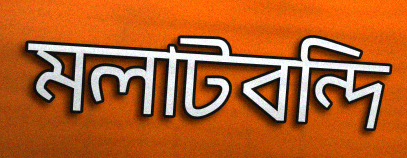
মলাটবন্দি